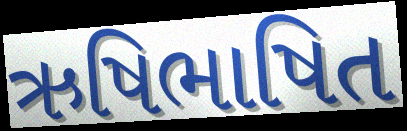
ઋષિભાષિત